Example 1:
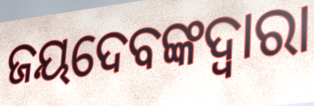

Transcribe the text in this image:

ଜୟଦେବଙ୍କଦ୍ୱାରା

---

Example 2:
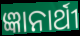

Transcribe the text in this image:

ଜ୍ଞାନାର୍ଥୀ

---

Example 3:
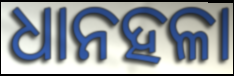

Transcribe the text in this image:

ଧାନହଳା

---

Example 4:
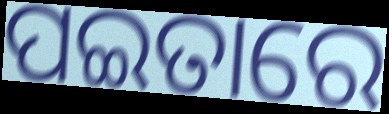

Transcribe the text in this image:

ପଇତାରେ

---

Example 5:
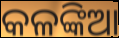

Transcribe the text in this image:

କଳଙ୍କିଆ